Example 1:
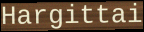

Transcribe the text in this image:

Hargittai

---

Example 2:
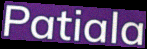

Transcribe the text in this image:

Patiala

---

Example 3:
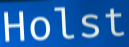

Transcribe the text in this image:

Holst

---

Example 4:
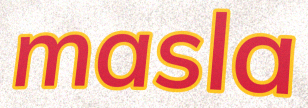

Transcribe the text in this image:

masla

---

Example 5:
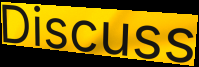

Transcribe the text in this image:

Discuss